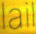
lail